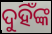
ଦୁହିଁଙ୍କ